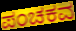
ಪಂಚಕವ